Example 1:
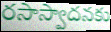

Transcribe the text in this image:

రసాస్వాదనకు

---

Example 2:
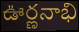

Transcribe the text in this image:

ఊర్ణనాభి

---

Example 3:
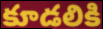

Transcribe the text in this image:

కూడలికి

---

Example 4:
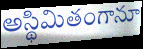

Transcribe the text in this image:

అస్థిమితంగానూ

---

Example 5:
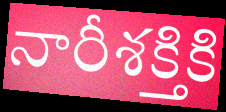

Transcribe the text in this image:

నారీశక్తికి